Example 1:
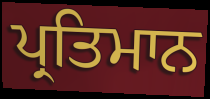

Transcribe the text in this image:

ਪ੍ਰਤਿਮਾਨ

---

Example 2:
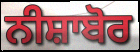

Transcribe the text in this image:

ਨੀਸ਼ਾਬੋਰ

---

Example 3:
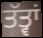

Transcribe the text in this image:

ਤੱਤ੍ਵਾਂ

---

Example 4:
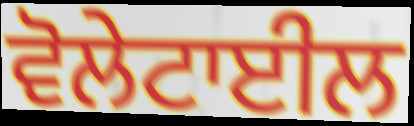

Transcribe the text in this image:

ਵੋਲੇਟਾਈਲ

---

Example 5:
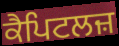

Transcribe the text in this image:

ਕੈਪਿਟਲਜ਼